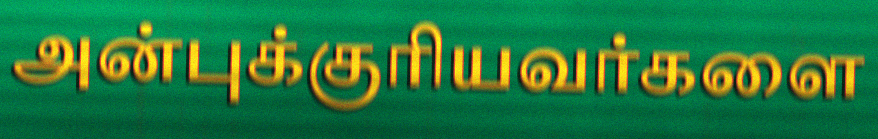
அன்புக்குரியவர்களை